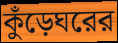
কুঁড়েঘরের